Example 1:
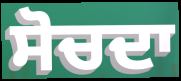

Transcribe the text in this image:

ਸੋਚਦਾ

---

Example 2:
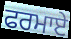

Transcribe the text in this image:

ਫਰਮਾਏ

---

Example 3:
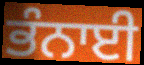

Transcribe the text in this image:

ਭੰਨਾਈ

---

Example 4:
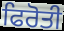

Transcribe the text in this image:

ਫਿਰੋਤੀ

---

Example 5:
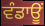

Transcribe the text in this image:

ਵੰਡਾਊਂ